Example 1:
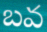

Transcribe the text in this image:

బవ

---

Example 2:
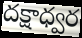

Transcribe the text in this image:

దక్షాధ్వర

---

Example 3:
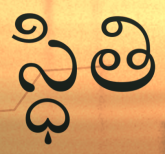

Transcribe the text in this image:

స్ధితి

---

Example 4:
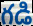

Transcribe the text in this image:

గడి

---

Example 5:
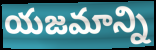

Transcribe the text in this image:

యజమాన్ని